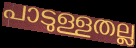
പാടുള്ളതല്ല